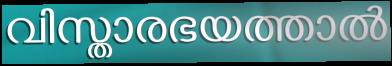
വിസ്താരഭയത്താൽ